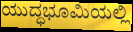
ಯುದ್ಧಭೂಮಿಯಲ್ಲಿ